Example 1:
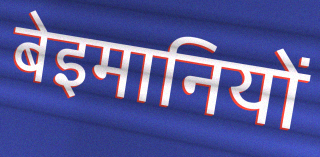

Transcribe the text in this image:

बेइमानियों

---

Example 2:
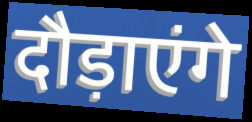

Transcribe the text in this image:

दौड़ाएंगे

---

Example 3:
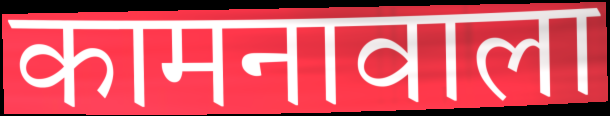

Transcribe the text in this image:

कामनावाला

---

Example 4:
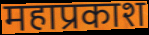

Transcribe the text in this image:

महाप्रकाश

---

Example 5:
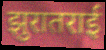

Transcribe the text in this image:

झुरातराई